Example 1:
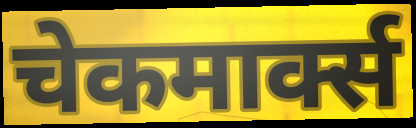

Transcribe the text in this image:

चेकमार्क्स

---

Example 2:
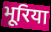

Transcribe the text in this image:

भूरिया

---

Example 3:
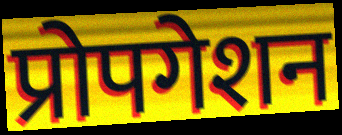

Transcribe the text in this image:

प्रोपगेशन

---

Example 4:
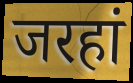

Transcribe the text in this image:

जरहां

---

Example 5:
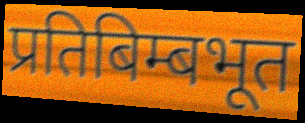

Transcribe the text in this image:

प्रतिबिम्बभूत